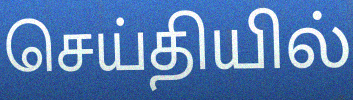
செய்தியில்